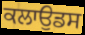
ਕਲਾਉਡਸ